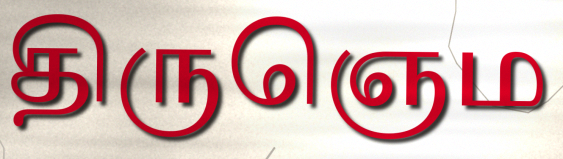
திருஞெம